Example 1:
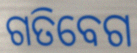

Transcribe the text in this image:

ଗତିବେଗ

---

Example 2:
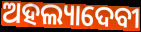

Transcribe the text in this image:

ଅହଲ୍ୟାଦେବୀ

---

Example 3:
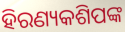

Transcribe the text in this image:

ହିରଣ୍ୟକଶିପଙ୍କ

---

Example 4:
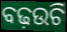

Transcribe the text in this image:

ବଢ଼ଉଚି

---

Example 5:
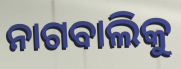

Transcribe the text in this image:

ନାଗବାଲିକୁ